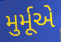
મુર્મૂએ